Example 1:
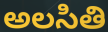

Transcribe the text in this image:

అలసితి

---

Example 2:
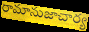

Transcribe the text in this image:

రామానుజాచార్య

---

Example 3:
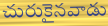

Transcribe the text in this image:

చురుకైనవాడు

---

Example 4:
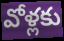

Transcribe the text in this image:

వోళ్లకు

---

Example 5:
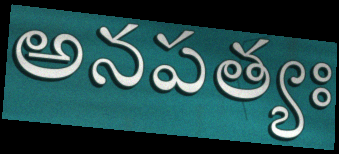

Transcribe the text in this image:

అనపత్యః